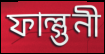
ফাল্গুনী